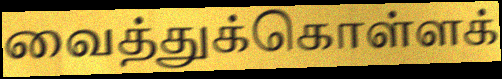
வைத்துக்கொள்ளக்